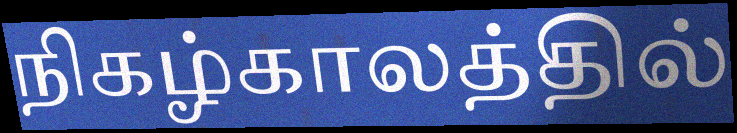
நிகழ்காலத்தில்